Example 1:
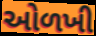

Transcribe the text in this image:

ઓળખી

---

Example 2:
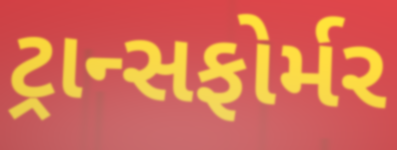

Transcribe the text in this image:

ટ્રાન્સફોર્મર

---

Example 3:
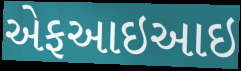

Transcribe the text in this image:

એફઆઇઆઇ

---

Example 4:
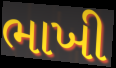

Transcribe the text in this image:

ભાખી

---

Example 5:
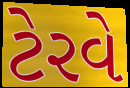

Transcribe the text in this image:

ટેરવે